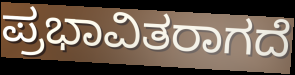
ಪ್ರಭಾವಿತರಾಗದೆ